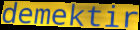
demektir